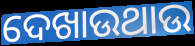
ଦେଖାଉଥାଉ